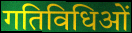
गतिविधिओं